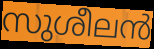
സുശീലൻ